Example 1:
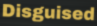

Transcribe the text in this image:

Disguised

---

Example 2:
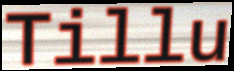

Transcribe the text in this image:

Tillu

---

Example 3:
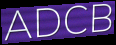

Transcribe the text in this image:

ADCB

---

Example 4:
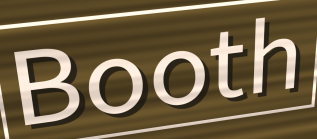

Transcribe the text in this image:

Booth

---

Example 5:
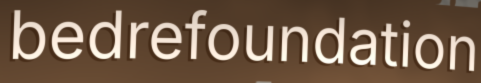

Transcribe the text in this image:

bedrefoundation